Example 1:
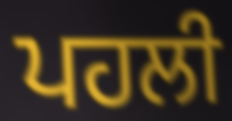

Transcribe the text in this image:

ਪਹਲੀ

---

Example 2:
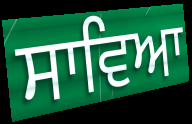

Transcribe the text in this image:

ਸਾਵਿਆ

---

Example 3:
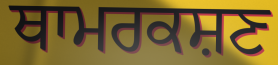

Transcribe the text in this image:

ਥਾਮਰਕਸ਼ਣ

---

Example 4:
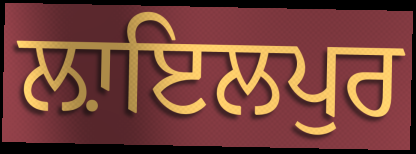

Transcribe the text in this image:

ਲ਼ਾਇਲਪੁਰ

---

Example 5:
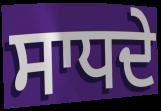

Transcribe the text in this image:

ਸਾਧਦੇ